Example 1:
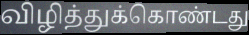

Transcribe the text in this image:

விழித்துக்கொண்டது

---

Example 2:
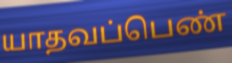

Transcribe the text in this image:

யாதவப்பெண்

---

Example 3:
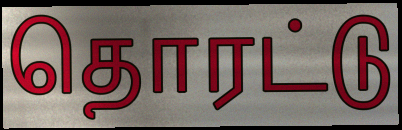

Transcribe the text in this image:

தொரட்டு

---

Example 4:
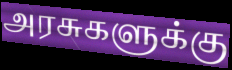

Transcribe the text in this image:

அரசுகளுக்கு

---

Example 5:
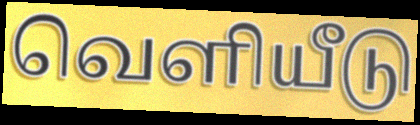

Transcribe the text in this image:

வெளியீடு